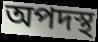
অপদস্থ